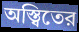
অস্ত্বিতের